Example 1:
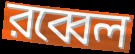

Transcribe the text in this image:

রব্বেল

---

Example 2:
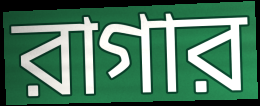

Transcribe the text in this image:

রাগার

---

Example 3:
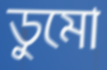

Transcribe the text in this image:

ডুমো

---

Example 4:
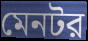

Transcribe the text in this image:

মেনটর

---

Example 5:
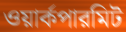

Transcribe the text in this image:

ওয়ার্কপারমিট